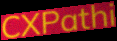
CXPathi